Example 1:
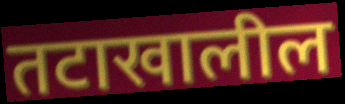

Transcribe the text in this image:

तटाखालील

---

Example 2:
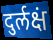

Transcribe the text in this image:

दुर्लक्षं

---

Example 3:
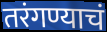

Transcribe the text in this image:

तरंगण्याचं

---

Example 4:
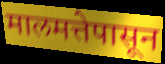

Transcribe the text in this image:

मालमत्तेपासून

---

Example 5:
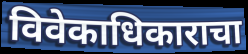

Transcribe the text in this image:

विवेकाधिकाराचा